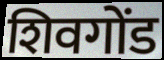
शिवगोंड